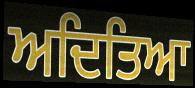
ਅਦਿਤਿਆ